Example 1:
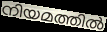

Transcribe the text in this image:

നിയമത്തിൽ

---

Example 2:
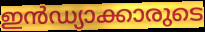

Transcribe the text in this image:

ഇൻഡ്യാക്കാരുടെ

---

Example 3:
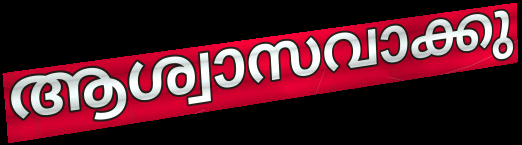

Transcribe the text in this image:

ആശ്വാസവാക്കു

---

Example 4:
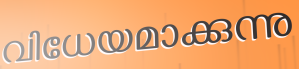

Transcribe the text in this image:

വിധേയമാക്കുന്നു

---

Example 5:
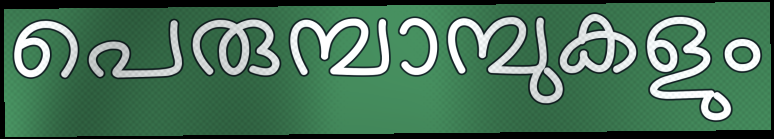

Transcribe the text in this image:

പെരുമ്പാമ്പുകളും